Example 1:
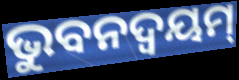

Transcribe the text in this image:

ଭୁବନଦ୍ଵୟମ୍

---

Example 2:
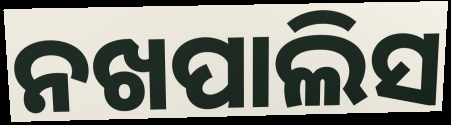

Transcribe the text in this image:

ନଖପାଲିସ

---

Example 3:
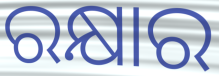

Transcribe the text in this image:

ରକ୍ଷାର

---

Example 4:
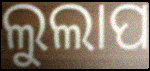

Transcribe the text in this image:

ଲୁଲାପ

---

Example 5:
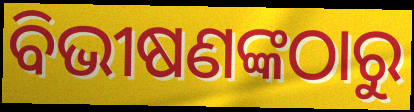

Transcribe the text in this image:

ବିଭୀଷଣଙ୍କଠାରୁ